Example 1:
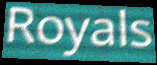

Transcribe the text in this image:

Royals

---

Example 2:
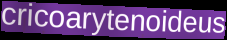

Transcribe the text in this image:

cricoarytenoideus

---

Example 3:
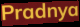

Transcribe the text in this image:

Pradnya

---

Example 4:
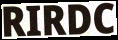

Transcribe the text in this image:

RIRDC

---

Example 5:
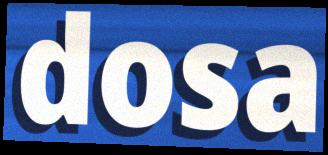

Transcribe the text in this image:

dosa